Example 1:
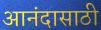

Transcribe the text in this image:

आनंदासाठी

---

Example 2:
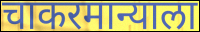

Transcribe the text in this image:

चाकरमान्याला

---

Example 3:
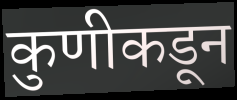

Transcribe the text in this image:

कुणीकडून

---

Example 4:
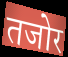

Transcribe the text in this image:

तजोर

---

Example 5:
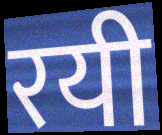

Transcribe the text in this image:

रयी